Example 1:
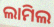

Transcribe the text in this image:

ଲାମିଲ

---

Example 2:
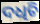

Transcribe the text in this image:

ଦଧିଚି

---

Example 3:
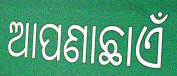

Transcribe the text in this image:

ଆପଣାଛାଏଁ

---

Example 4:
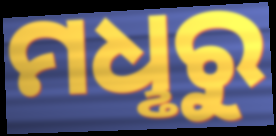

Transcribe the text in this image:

ମଧୢରୁ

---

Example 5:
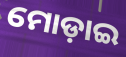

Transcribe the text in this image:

ମୋଡ଼ାଇ